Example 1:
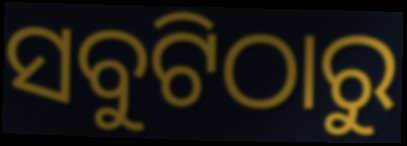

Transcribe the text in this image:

ସବୁଟିଠାରୁ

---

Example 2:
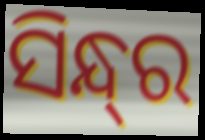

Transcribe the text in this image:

ସିନ୍ଧ୍‌ର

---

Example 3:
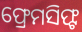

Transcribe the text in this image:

ଫ୍ରେମସିଫ୍ଟ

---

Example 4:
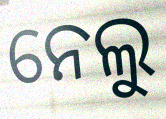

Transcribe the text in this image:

ନେଲୁ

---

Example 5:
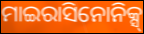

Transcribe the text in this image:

ମାଇରାସିନୋନିକ୍ସ୍